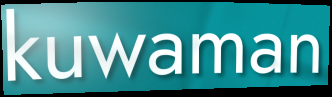
kuwaman